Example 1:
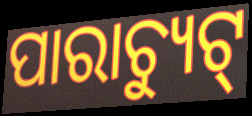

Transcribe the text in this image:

ପାରାଚ୍ୟୁଟ୍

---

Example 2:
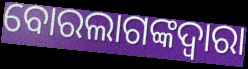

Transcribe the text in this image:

ବୋରଲାଗଙ୍କଦ୍ୱାରା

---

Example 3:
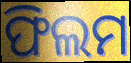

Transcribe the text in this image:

ଫିଲମ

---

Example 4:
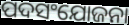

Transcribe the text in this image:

ପଦସଂଯୋଜନା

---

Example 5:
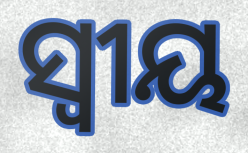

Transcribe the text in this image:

ସ୍ୱୀୟ